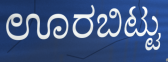
ಊರಬಿಟ್ಟು